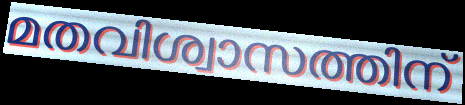
മതവിശ്വാസത്തിന്